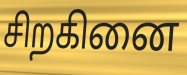
சிறகினை